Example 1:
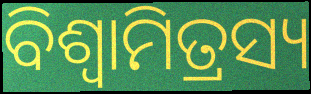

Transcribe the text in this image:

ବିଶ୍ଵାମିତ୍ରସ୍ୟ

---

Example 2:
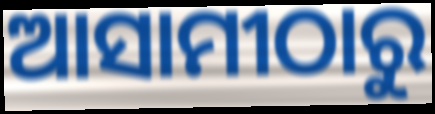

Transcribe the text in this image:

ଆସାମୀଠାରୁ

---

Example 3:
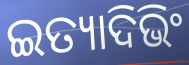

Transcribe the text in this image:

ଇତ୍ୟାଦିଭିଂ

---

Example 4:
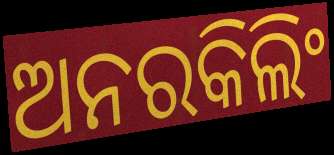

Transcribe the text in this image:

ଅନରକିଲିଂ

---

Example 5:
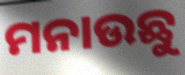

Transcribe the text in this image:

ମନାଉଛୁ